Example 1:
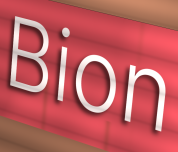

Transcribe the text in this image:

Bion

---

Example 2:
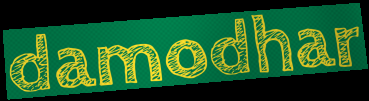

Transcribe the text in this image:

damodhar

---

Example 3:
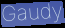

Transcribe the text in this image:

Gaudy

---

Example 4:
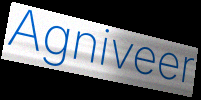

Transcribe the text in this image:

Agniveer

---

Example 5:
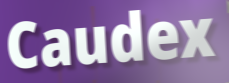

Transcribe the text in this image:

Caudex